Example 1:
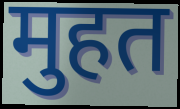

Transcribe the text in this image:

मुहत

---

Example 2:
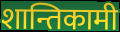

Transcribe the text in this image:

शान्तिकामी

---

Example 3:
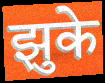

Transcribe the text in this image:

झुके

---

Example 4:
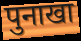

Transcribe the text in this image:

पुनाखा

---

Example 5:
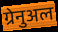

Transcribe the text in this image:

ग्रेनुअल